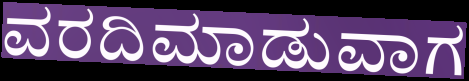
ವರದಿಮಾಡುವಾಗ